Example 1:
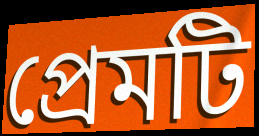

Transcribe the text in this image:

প্রেমটি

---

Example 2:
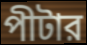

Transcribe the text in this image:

পীটার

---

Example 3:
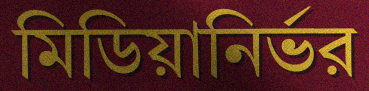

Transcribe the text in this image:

মিডিয়ানির্ভর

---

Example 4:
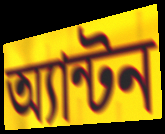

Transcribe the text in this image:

অ্যান্টন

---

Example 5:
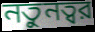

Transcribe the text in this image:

নতুনত্বর